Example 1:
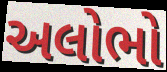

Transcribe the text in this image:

અલોભો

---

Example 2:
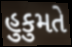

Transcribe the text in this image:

હુકુમતે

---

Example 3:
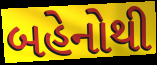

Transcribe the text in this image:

બહેનોથી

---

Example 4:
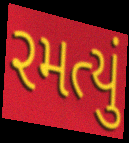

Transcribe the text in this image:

રમત્યું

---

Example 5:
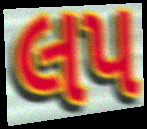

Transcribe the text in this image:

લપ